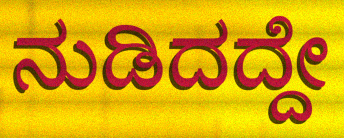
ನುಡಿದದ್ದೇ